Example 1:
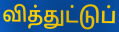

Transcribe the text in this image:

வித்துட்டுப்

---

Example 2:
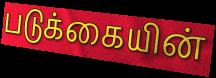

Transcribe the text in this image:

படுக்கையின்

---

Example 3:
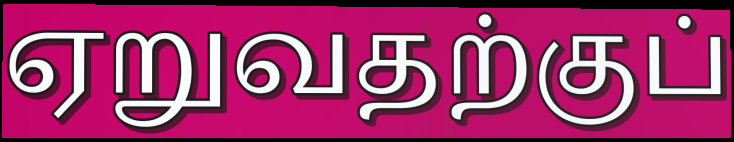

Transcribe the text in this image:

ஏறுவதற்குப்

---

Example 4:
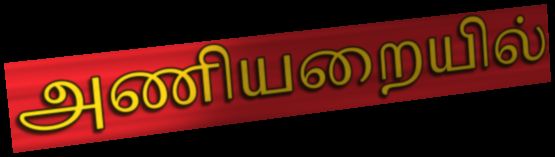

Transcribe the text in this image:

அணியறையில்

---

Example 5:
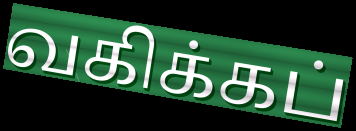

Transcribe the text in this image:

வகிக்கப்